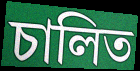
চালিত